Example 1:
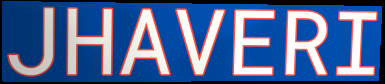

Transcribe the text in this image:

JHAVERI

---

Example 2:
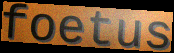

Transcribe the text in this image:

foetus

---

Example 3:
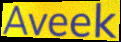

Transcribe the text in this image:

Aveek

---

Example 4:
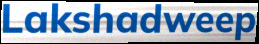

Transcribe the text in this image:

Lakshadweep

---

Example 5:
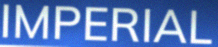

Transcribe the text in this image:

IMPERIAL